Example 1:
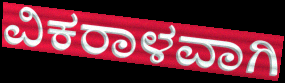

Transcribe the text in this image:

ವಿಕರಾಳವಾಗಿ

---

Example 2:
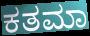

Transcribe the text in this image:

ಕತಮಾ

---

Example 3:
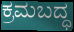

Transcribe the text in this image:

ಕ್ರಮಬದ್ಧ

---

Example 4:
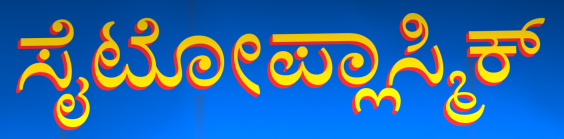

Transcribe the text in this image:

ಸೈಟೋಪ್ಲಾಸ್ಮಿಕ್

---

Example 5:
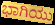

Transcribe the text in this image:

ಭಾಗಿಯು